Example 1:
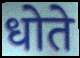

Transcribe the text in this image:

धोते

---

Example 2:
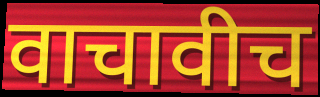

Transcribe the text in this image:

वाचावीच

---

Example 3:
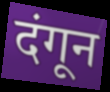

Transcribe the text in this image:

दंगून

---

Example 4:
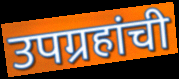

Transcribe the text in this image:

उपग्रहांची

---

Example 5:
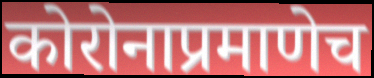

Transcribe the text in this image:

कोरोनाप्रमाणेच